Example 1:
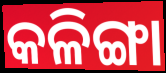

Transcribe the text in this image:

କଳିଙ୍ଗା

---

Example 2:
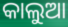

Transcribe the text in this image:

କାଲୁଆ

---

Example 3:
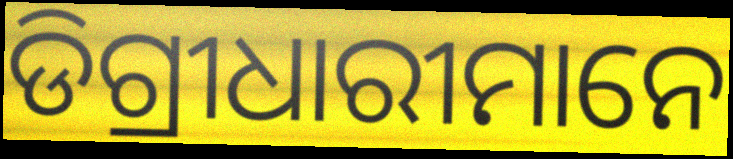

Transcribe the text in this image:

ଡିଗ୍ରୀଧାରୀମାନେ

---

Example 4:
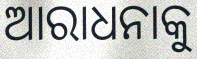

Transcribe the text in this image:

ଆରାଧନାକୁ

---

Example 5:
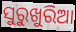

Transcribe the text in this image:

ସୁରୁଖୁରିଆ